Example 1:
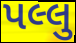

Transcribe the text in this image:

પલ્લુ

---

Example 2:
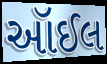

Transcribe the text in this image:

ઑઈલ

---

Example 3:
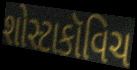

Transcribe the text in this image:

શોસ્ટાકૉવિચ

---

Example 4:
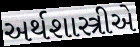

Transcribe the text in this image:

અર્થશાસ્ત્રીએ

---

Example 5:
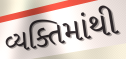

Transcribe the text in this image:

વ્યક્તિમાંથી